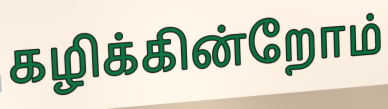
கழிக்கின்றோம்